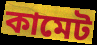
কামেট